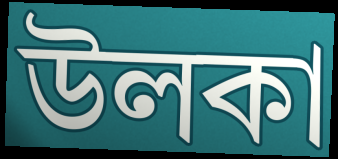
উলকা